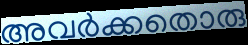
അവർക്കതൊരു